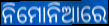
ନିମୋନିଆରେ